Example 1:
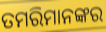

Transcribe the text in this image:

ତମରିମାନଙ୍କର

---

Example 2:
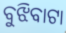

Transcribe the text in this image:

ବୁଝିବାଟା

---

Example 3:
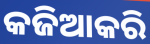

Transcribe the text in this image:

କଜିଆକରି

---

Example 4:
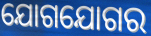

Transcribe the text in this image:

ଯୋଗଯୋଗର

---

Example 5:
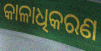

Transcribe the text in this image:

କାଳାଧିକରଣ